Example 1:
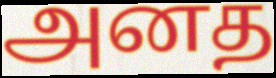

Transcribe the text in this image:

அனத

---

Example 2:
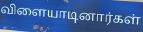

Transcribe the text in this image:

விளையாடினார்கள்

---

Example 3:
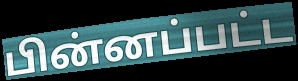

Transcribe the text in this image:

பின்னப்பட்ட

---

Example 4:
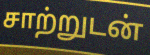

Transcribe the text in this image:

சாற்றுடன்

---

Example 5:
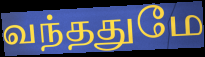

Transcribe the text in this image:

வந்ததுமே